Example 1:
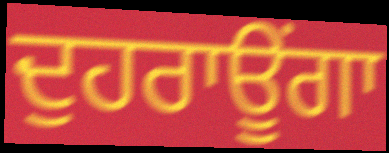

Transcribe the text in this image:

ਦੁਹਰਾਊਂਗਾ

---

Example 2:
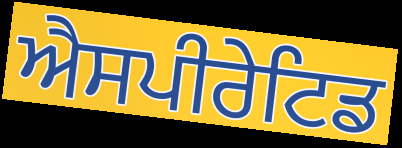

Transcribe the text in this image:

ਐਸਪੀਰੇਟਿਡ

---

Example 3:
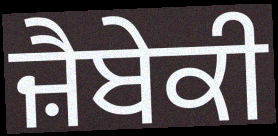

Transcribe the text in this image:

ਜ਼ੈਬੇਕੀ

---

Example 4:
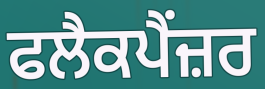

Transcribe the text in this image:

ਫਲੈਕਪੈਂਜ਼ਰ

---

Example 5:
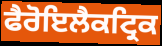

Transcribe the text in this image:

ਫੈਰੋਇਲੈਕਟ੍ਰਿਕ